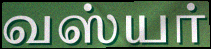
வஸ்யர்